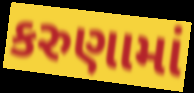
કરુણામાં